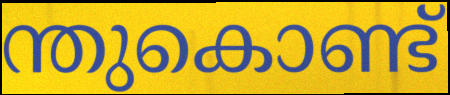
ന്തുകൊണ്ട്